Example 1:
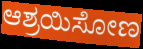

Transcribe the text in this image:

ಆಶ್ರಯಿಸೋಣ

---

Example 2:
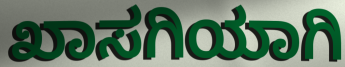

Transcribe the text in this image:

ಖಾಸಗಿಯಾಗಿ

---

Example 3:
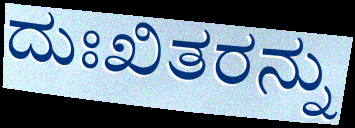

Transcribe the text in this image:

ದುಃಖಿತರನ್ನು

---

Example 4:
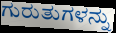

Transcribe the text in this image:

ಗುರುತುಗಳನ್ನು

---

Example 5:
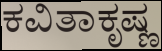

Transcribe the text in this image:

ಕವಿತಾಕೃಷ್ಣ